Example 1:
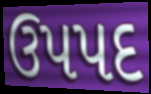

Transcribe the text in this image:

ઉપપદ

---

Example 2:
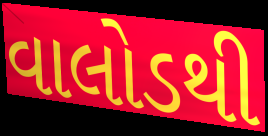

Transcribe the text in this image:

વાલોડથી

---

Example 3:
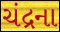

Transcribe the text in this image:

ચંદ્રના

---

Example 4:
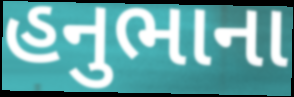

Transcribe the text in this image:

હનુભાના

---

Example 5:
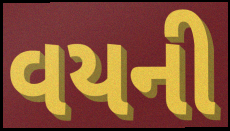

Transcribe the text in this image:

વયની